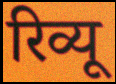
रिव्यू